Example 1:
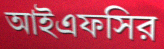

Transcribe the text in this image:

আইএফসির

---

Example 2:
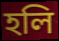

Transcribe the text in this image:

হলি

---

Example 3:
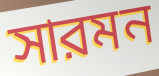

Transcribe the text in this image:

সারমন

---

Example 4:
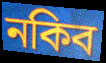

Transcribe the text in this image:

নকিব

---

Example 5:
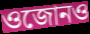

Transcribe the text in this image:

ওজোনও